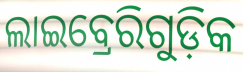
ଲାଇବ୍ରେରିଗୁଡ଼ିକ